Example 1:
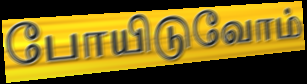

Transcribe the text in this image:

போயிடுவோம்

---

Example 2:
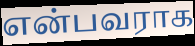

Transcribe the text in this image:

என்பவராக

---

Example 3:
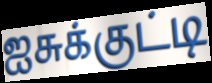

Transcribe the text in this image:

ஐசுக்குட்டி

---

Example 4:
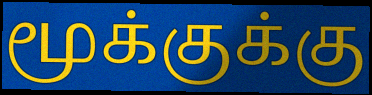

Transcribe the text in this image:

மூக்குக்கு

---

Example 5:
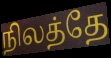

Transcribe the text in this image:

நிலத்தே